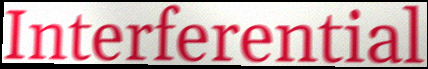
Interferential